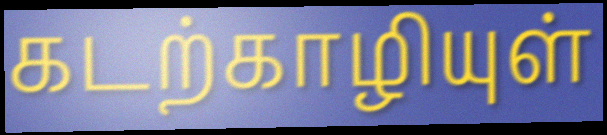
கடற்காழியுள்